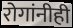
रोगांनीही